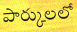
పార్కులలో